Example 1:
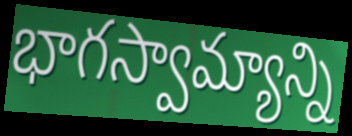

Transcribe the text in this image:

భాగస్వామ్యాన్ని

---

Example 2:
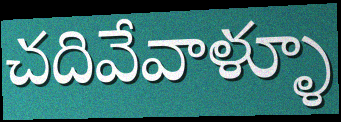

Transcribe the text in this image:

చదివేవాళ్ళూ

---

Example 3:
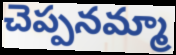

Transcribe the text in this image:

చెప్పనమ్మా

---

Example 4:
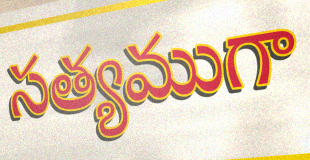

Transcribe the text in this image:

సత్యముగా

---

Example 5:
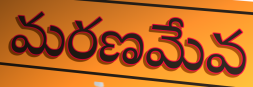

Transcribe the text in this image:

మరణమేవ